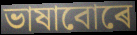
ভাষাবোৰে